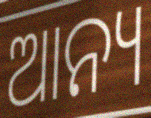
ଆନ୍ୟ